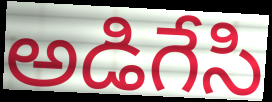
అడిగేసి